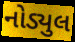
નોડ્યુલ